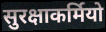
सुरक्षाकर्मियो